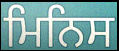
ਮਿਨਿਸ